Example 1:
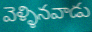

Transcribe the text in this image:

వెళ్ళినవాడు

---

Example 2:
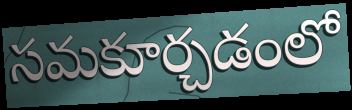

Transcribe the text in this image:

సమకూర్చడంలో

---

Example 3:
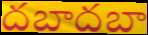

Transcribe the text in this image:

దబాదబా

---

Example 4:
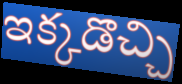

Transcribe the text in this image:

ఇక్కడొచ్చి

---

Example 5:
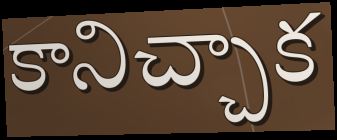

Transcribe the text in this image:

కానిచ్చాక